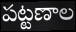
పట్టణాల